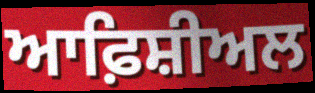
ਆਫ਼ਿਸ਼ੀਅਲ